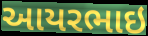
આયરભાઇ